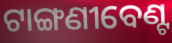
ଟାଙ୍ଗଣୀବେଣ୍ଟ